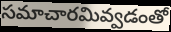
సమాచారమివ్వడంతో